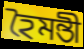
হৈমন্তী